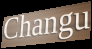
Changu